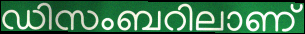
ഡിസംബറിലാണ്